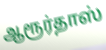
ஆரூர்தாஸ்